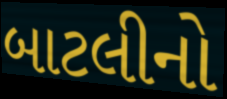
બાટલીનો